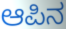
ಆಪಿನ